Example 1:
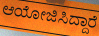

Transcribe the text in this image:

ಆಯೋಜಿಸಿದ್ದಾರೆ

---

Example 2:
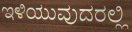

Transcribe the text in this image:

ಇಳಿಯುವುದರಲ್ಲಿ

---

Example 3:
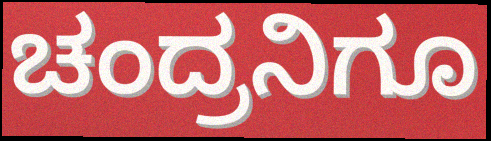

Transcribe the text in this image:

ಚಂದ್ರನಿಗೂ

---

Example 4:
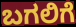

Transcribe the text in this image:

ಬಗಲಿಗೆ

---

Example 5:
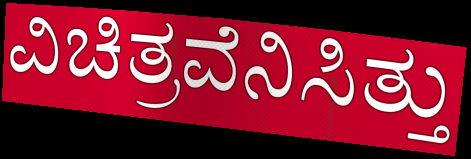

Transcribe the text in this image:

ವಿಚಿತ್ರವೆನಿಸಿತ್ತು